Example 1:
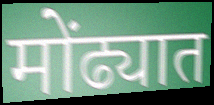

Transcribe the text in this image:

मोंढ्यात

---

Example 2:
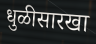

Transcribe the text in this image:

धुळीसारखा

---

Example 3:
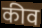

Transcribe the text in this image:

कीव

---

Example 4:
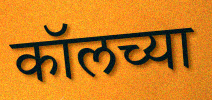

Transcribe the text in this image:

कॉलच्या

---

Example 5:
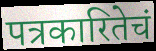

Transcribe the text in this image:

पत्रकारितेचं